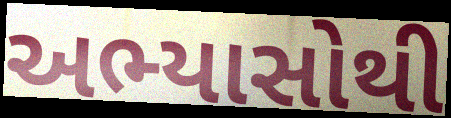
અભ્યાસોથી